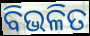
ବିଭଳିତ